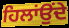
ਹਿਲਾਂਉਂਦੇ